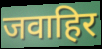
जवाहिर